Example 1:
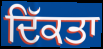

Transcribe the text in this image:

ਦਿੱਕਤਾ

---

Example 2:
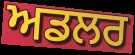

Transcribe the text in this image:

ਅਡਲਰ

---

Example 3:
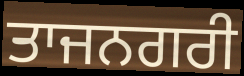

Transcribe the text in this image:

ਤਾਜਨਗਰੀ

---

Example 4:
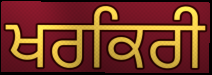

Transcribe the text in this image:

ਖਰਕਿਰੀ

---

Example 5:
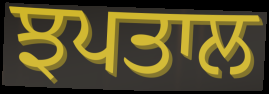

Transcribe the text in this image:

ਝਪਤਾਲ